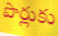
పొర్లుకు